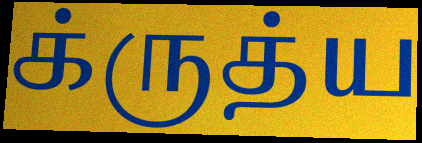
க்ருத்ய